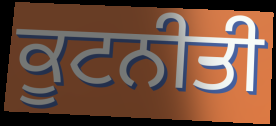
ਕੂਟਨੀਤੀ